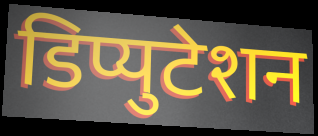
डिप्युटेशन